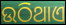
ଉଠିଥାଏ